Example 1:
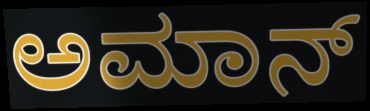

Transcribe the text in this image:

ಅಮಾನ್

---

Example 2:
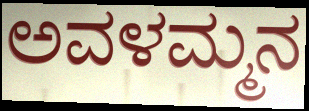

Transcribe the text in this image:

ಅವಳಮ್ಮನ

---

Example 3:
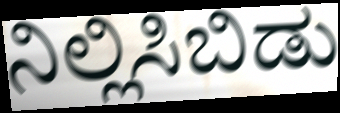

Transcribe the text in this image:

ನಿಲ್ಲಿಸಿಬಿಡು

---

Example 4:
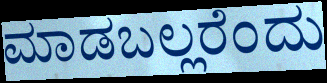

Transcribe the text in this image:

ಮಾಡಬಲ್ಲರೆಂದು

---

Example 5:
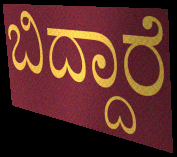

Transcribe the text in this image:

ಬಿದ್ದಾರೆ